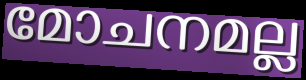
മോചനമല്ല